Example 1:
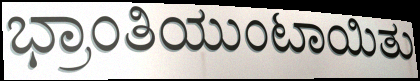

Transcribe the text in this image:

ಭ್ರಾಂತಿಯುಂಟಾಯಿತು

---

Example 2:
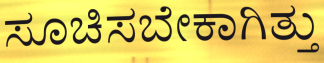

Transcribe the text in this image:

ಸೂಚಿಸಬೇಕಾಗಿತ್ತು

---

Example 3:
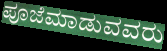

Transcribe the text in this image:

ಪೂಜೆಮಾಡುವವರು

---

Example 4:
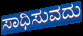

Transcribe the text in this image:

ಸಾಧಿಸುವದು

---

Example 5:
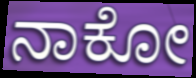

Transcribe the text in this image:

ನಾಕೋ